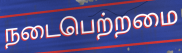
நடைபெற்றமை